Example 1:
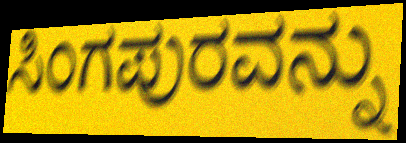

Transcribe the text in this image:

ಸಿಂಗಪುರವನ್ನು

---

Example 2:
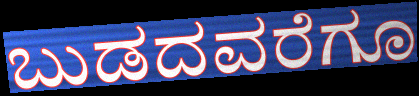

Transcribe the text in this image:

ಬುಡದವರೆಗೂ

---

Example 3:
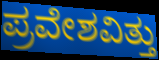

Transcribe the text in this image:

ಪ್ರವೇಶವಿತ್ತು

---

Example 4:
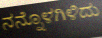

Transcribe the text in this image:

ನನ್ನೊಳಗಿಳಿದು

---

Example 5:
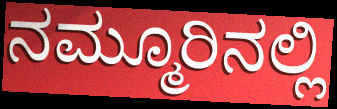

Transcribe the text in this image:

ನಮ್ಮೂರಿನಲ್ಲಿ